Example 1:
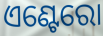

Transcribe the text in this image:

ଏଣ୍ଟେରୋ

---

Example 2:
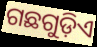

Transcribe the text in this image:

ଗଛଗୁଡ଼ିଏ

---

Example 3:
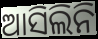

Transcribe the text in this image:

ଆସିଲିନି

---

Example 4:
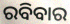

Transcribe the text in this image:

ରବିବାର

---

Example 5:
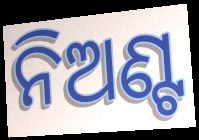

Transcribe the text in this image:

ନିଅଣ୍ଟ